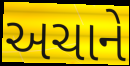
અચાને